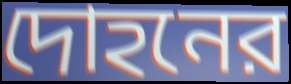
দোহনের